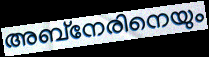
അബ്നേരിനെയും